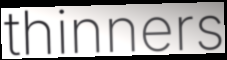
thinners